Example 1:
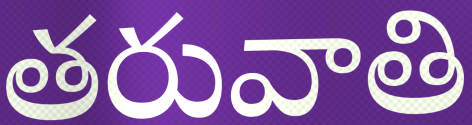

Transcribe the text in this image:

తరువాతి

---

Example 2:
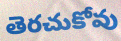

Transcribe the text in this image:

తెరచుకోవు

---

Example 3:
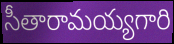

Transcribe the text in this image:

సీతారామయ్యగారి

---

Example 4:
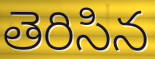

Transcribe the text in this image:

తెరిసిన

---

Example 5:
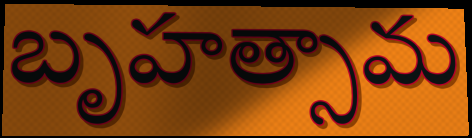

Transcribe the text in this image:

బృహత్సామ